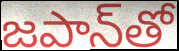
జపాన్‌తో